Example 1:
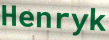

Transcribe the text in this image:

Henryk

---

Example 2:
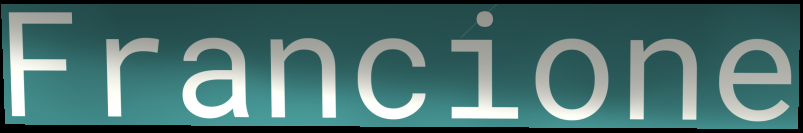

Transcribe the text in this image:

Francione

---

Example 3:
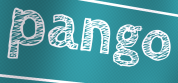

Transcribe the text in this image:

pango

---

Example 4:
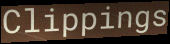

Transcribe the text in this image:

Clippings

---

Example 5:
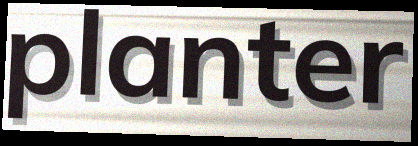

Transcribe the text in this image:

planter